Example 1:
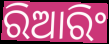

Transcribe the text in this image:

ରିଆରିଂ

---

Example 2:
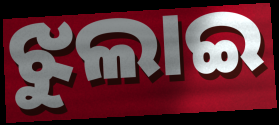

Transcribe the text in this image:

ଝୁଲାଇ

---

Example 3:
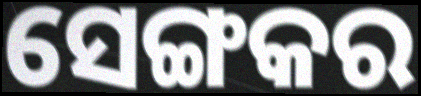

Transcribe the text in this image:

ସେଙ୍ଗକର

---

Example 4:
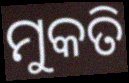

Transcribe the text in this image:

ମୁକତି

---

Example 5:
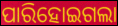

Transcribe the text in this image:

ପାରିହୋଇଗଲା